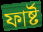
ফার্ষ্ট